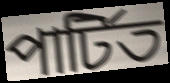
পাৰ্টিত